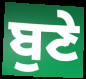
ਬੁਣੇ